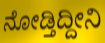
ನೋಡ್ತಿದ್ದೀನಿ